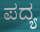
ಪದ್ಯ